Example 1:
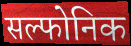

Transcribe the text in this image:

सल्फोनिक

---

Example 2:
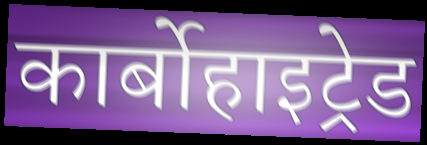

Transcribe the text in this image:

कार्बोहाइट्रेड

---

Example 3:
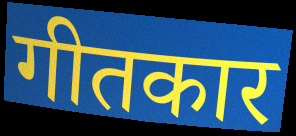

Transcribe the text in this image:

गीतकार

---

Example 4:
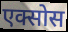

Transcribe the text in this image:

एक्सोस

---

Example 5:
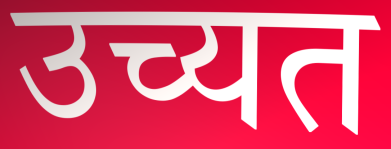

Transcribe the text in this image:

उच्यत